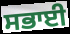
ਸਭਾਈ